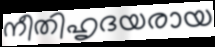
നീതിഹൃദയരായ